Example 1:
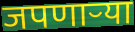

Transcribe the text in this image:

जपणाऱ्या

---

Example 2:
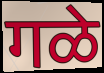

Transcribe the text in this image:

गळे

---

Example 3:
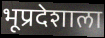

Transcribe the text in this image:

भूप्रदेशाला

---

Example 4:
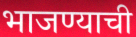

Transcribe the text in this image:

भाजण्याची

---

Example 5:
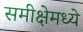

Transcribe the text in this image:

समीक्षेमध्ये